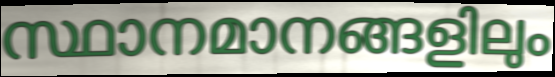
സ്ഥാനമാനങ്ങളിലും